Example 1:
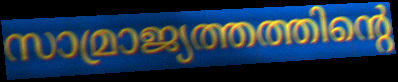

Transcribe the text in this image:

സാമ്രാജ്യത്തത്തിന്റെ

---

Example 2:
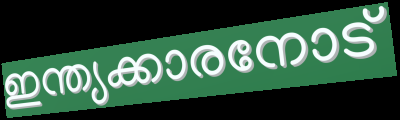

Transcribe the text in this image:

ഇന്ത്യക്കാരനോട്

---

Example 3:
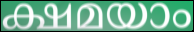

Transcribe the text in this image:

ക്ഷമയാം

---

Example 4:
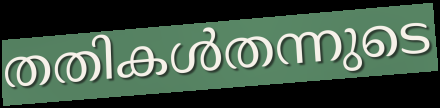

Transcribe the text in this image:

തതികൾതന്നുടെ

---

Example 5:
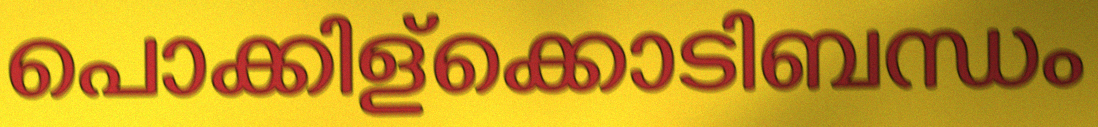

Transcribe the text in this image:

പൊക്കിള്ക്കൊടിബന്ധം